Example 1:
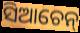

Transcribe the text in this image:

ସିଆଚେନ୍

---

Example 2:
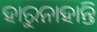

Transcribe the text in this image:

ହାରୁନାହାନ୍ତି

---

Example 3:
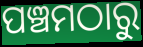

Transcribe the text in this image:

ପଞ୍ଚମଠାରୁ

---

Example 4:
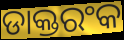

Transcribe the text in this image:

ଡାକ୍ତରଂକ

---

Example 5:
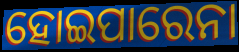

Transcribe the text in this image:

ହୋଇପାରେନା